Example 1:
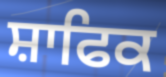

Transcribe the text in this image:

ਸ਼ਾਫਿਕ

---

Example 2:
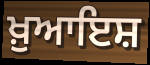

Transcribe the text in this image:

ਖ਼ੁਆਇਸ਼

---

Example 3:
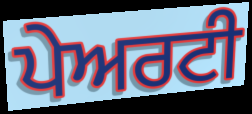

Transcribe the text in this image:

ਪੇਅਰਟੀ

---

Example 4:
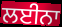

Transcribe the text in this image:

ਲਈਨਾ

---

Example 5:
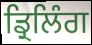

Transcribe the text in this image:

ਡ੍ਰਿਲਿੰਗ